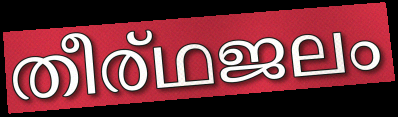
തീര്ഥജലം